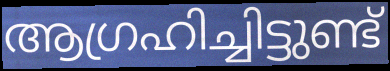
ആഗ്രഹിച്ചിട്ടുണ്ട്